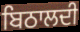
ਬਿਠਾਲਦੀ